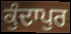
ਕੁੰਦਾਪੁਰ